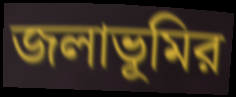
জলাভূমির